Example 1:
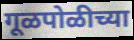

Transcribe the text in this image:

गूळपोळीच्या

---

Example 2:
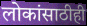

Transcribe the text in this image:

लोकांसाठीही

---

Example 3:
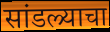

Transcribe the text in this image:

सांडल्याचा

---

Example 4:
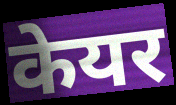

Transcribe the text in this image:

केयर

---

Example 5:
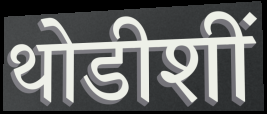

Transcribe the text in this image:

थोडीशीं